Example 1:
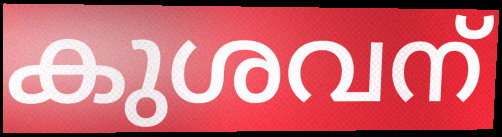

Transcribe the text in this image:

കുശവന്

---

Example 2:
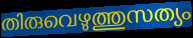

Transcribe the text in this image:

തിരുവെഴുത്തുസത്യം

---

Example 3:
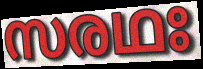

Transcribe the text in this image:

സരഥഃ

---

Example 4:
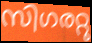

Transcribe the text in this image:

സിഗരറ്റു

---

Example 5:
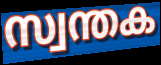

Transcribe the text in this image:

സ്വന്തക